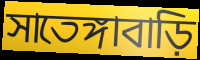
সাতেঙ্গাবাড়ি